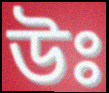
উঃ